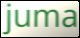
juma